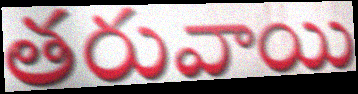
తరువాయి